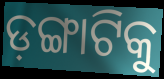
ଡ଼ଙ୍ଗାଟିକୁ